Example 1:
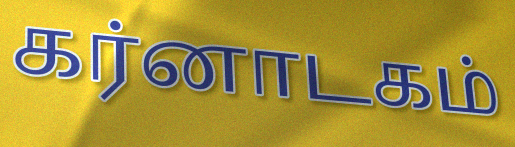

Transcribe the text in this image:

கர்னாடகம்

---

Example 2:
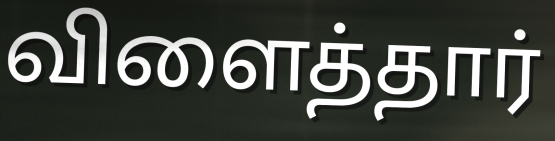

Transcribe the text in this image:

விளைத்தார்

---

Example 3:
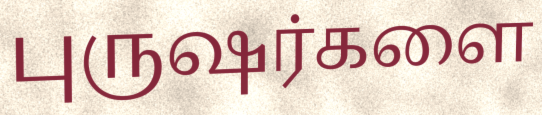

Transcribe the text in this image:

புருஷர்களை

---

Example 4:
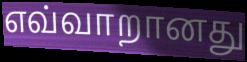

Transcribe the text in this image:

எவ்வாறானது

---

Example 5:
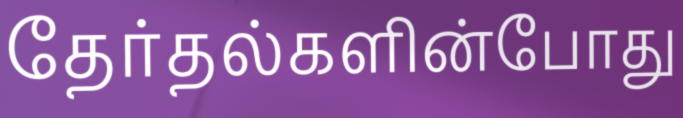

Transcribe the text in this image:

தேர்தல்களின்போது